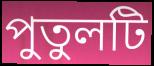
পুতুলটি